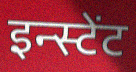
इन्स्टेंट